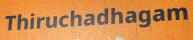
Thiruchadhagam